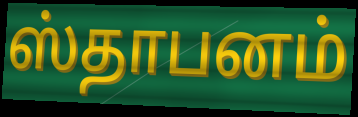
ஸ்தாபனம்